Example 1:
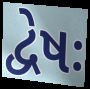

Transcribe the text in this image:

દ્વેષઃ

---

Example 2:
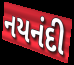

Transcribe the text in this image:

નયનંદી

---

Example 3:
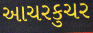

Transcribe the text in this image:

આચરકુચર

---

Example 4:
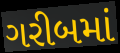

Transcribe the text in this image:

ગરીબમાં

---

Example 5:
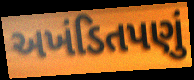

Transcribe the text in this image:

અખંડિતપણું